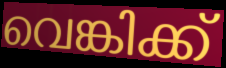
വെങ്കിക്ക്